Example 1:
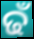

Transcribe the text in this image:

ଢଁ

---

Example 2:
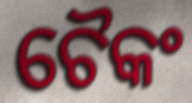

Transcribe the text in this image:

ଚୈକଂ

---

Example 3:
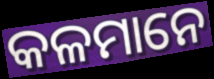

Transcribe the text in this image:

କଳମାନେ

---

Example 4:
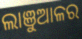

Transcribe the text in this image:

ଲାଞୁଆଳର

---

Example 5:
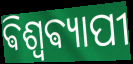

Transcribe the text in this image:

ଵିଶ୍ଵଵ୍ୟାପୀ